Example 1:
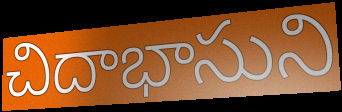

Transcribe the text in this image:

చిదాభాసుని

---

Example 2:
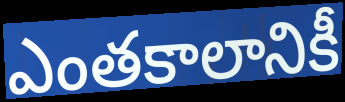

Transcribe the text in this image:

ఎంతకాలానికీ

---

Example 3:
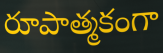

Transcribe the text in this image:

రూపాత్మకంగా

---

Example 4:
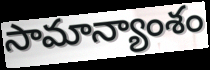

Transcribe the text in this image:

సామాన్యాంశం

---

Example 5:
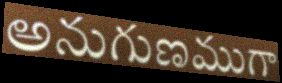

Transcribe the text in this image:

అనుగుణముగా